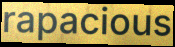
rapacious